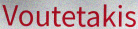
Voutetakis